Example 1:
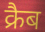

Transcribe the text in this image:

क्रैब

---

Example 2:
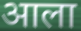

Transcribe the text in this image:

आला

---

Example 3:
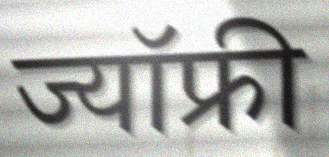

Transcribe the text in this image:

ज्यॉफ्री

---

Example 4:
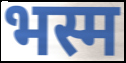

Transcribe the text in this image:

भस्म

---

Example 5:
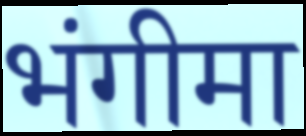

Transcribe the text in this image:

भंगीमा